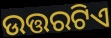
ଉତ୍ତରଟିଏ